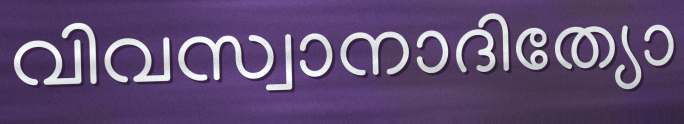
വിവസ്വാനാദിത്യോ